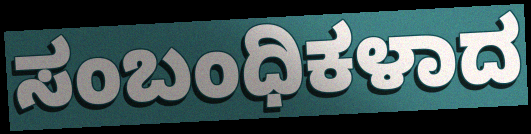
ಸಂಬಂಧಿಕಳಾದ